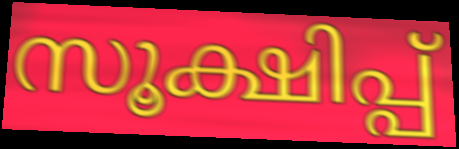
സൂക്ഷിപ്പ്